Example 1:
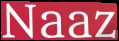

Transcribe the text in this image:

Naaz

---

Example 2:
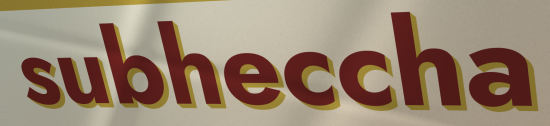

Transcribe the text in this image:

subheccha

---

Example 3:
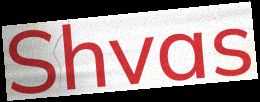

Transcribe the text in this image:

Shvas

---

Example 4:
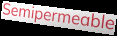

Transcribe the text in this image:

Semipermeable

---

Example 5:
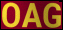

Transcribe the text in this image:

OAG